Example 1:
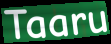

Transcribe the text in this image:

Taaru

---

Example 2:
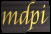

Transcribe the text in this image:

mdpi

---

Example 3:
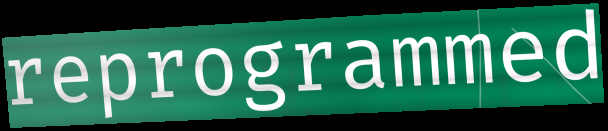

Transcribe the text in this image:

reprogrammed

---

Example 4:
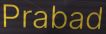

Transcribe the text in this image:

Prabad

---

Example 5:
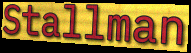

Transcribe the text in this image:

Stallman